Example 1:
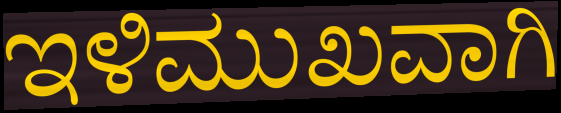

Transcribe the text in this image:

ಇಳಿಮುಖವಾಗಿ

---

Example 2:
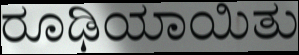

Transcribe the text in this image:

ರೂಢಿಯಾಯಿತು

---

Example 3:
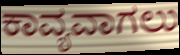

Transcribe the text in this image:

ಕಾವ್ಯವಾಗಲು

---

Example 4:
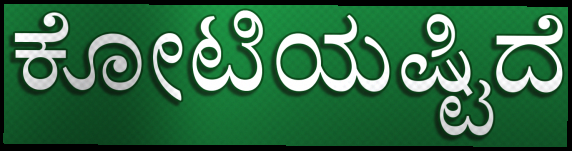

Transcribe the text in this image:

ಕೋಟಿಯಷ್ಟಿದೆ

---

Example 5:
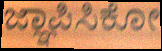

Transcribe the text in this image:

ಜ್ಞಾಪಿಸಿಕೋ